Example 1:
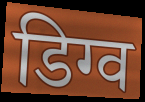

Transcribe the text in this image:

डिग्व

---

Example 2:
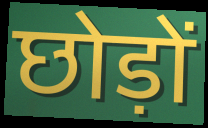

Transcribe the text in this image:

छोड़ों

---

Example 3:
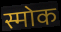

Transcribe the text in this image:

स्मोक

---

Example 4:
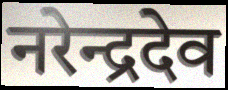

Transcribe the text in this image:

नरेन्द्रदेव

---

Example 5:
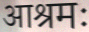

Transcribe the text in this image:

आश्रमः